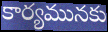
కార్యమునకు